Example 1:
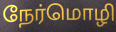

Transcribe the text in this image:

நேர்மொழி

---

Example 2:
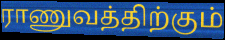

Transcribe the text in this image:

ராணுவத்திற்கும்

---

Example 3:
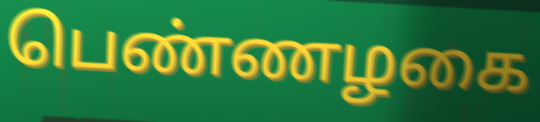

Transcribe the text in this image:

பெண்ணழகை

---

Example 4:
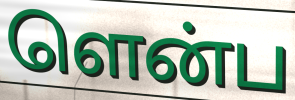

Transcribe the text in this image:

ளென்ப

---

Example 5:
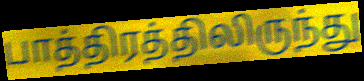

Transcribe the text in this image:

பாத்திரத்திலிருந்து